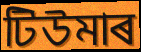
টিউমাৰ